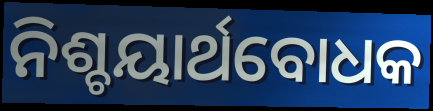
ନିଶ୍ଚୟାର୍ଥବୋଧକ